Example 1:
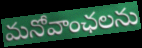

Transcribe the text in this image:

మనోవాంఛలను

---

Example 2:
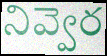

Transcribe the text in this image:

నివ్వెర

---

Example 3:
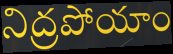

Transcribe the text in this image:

నిద్రపోయాం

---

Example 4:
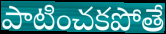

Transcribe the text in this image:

పాటించకపోతే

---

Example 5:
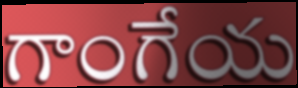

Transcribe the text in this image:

గాంగేయ